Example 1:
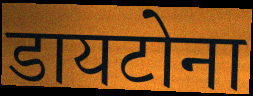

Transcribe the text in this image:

डायटोना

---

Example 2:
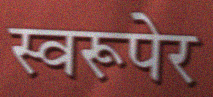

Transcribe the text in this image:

स्वरूपेर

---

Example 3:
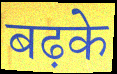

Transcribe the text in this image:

बढ़के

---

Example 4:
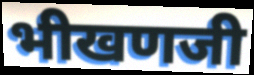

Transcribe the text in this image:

भीखणजी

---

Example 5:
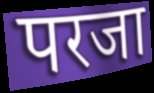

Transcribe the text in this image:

परजा